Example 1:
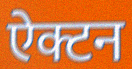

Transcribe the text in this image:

ऐक्टन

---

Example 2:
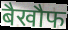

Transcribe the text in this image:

बैखौफ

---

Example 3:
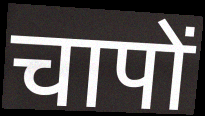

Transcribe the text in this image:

चापों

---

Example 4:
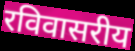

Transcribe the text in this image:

रविवासरीय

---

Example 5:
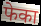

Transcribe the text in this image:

फेका